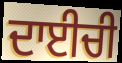
ਦਾਈਚੀ